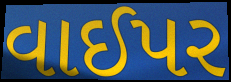
વાઈપર